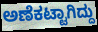
ಅಣೆಕಟ್ಟಾಗಿದ್ದು